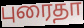
புரைதா